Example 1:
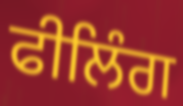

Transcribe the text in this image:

ਫੀਲਿੰਗ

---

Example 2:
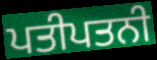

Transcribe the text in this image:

ਪਤੀਪਤਨੀ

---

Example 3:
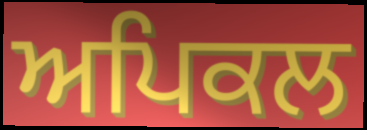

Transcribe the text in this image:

ਅਪਿਕਲ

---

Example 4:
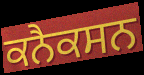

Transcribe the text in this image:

ਕਨੈਕਸਨ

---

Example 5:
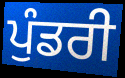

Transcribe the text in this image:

ਪੁੰਡਰੀ